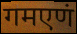
गमएणं